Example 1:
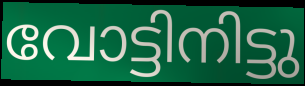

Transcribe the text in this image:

വോട്ടിനിട്ടു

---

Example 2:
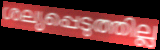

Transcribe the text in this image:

ശല്യപ്പെടുത്തില്ല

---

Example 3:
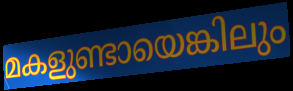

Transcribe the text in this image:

മകളുണ്ടായെങ്കിലും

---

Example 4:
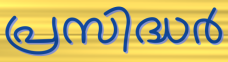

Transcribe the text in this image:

പ്രസിദ്ധർ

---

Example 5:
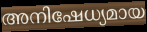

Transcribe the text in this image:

അനിഷേധ്യമായ